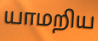
யாமறிய